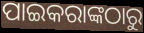
ପାଇକରାଙ୍କଠାରୁ